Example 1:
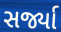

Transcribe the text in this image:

સર્જ્યા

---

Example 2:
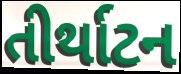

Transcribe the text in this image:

તીર્થાટન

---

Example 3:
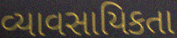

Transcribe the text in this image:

વ્યાવસાયિકતા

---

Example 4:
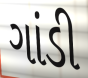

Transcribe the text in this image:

ગાંડી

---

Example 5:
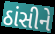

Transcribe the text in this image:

ઠાંસીને